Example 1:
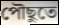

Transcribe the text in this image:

পৌছুতে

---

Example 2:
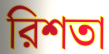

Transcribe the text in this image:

রিশতা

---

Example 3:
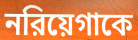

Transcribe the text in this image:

নরিয়েগাকে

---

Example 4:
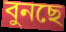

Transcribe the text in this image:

বুনছে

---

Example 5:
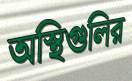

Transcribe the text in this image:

অস্থিগুলির